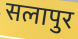
सलापुर